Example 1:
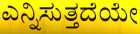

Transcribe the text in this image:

ಎನ್ನಿಸುತ್ತದೆಯೇ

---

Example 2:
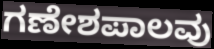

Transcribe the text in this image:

ಗಣೇಶಪಾಲವು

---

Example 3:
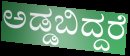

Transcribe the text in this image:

ಅಡ್ಡಬಿದ್ದರೆ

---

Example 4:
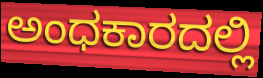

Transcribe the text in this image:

ಅಂಧಕಾರದಲ್ಲಿ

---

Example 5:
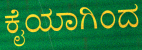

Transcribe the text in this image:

ಕೈಯಾಗಿಂದ